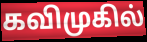
கவிமுகில்